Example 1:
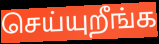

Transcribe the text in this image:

செய்யுறீங்க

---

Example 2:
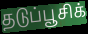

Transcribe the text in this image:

தடுப்பூசிக்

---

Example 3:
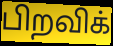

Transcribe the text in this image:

பிறவிக்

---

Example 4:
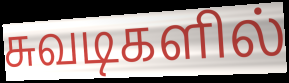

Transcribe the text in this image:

சுவடிகளில்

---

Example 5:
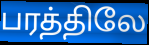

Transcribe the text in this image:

பரத்திலே